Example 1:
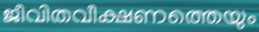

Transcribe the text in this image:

ജീവിതവീക്ഷണത്തെയും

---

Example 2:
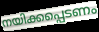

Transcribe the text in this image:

നയിക്കപ്പെടണം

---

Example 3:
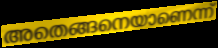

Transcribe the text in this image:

അതെങ്ങനെയാണെന്ന്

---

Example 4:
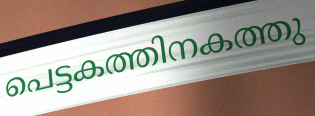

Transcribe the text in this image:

പെട്ടകത്തിനകത്തു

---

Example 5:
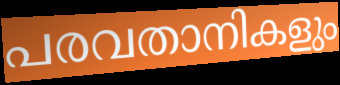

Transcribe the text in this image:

പരവതാനികളും